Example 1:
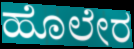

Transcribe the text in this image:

ಹೊಲೇರ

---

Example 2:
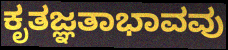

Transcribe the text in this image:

ಕೃತಜ್ಞತಾಭಾವವು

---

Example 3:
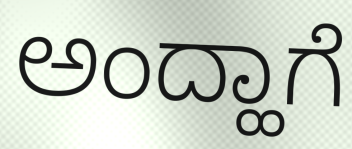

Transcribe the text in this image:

ಅಂದ್ಹಾಗೆ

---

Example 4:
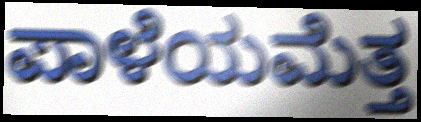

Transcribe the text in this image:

ಪಾಳೆಯಮೆತ್ತ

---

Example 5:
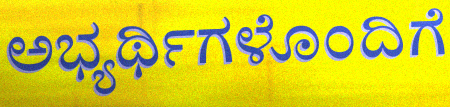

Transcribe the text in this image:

ಅಭ್ಯರ್ಥಿಗಳೊಂದಿಗೆ